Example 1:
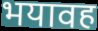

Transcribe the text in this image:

भयावह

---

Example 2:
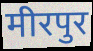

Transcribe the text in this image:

मीरपुर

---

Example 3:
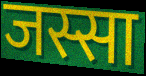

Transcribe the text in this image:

जस्सा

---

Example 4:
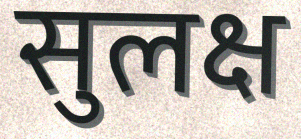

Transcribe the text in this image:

सुलक्ष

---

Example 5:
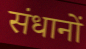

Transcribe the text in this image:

संधानों